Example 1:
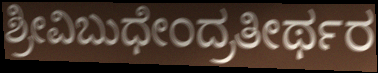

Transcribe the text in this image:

ಶ್ರೀವಿಬುಧೇಂದ್ರತೀರ್ಥರ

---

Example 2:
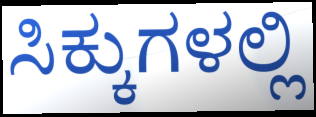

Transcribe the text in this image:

ಸಿಕ್ಕುಗಳಲ್ಲಿ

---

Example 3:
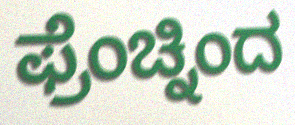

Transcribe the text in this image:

ಫ್ರೆಂಚ್ನಿಂದ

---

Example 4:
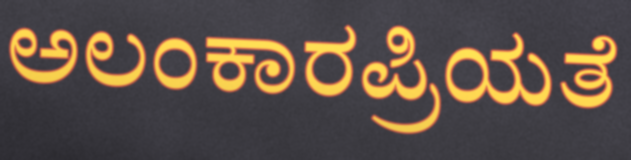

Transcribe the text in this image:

ಅಲಂಕಾರಪ್ರಿಯತೆ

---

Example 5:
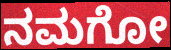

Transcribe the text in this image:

ನಮಗೋ